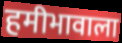
हमीभावाला